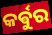
କର୍ଵୁର